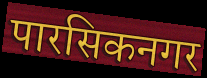
पारसिकनगर